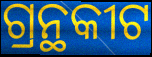
ଗ୍ରନ୍ଥକୀଟ